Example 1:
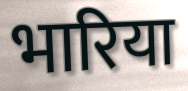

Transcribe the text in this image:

भारिया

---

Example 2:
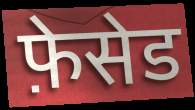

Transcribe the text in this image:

फ़ेसेड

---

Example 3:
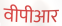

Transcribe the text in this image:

वीपीआर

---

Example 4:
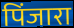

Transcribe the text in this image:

पिंजारा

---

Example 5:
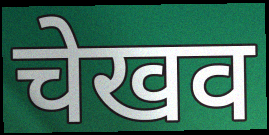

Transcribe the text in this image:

चेखव